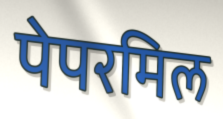
पेपरमिल